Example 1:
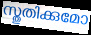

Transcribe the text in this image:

സ്തുതിക്കുമോ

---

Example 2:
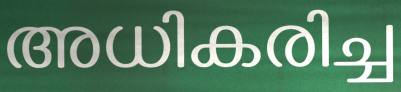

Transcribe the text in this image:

അധികരിച്ച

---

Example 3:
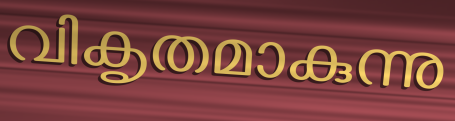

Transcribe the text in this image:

വികൃതമാകുന്നു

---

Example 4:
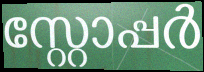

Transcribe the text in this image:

സ്റ്റോപ്പർ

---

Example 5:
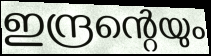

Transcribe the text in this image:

ഇന്ദ്രന്റെയും